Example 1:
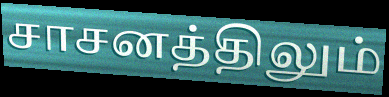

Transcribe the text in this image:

சாசனத்திலும்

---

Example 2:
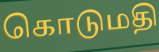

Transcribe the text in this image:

கொடுமதி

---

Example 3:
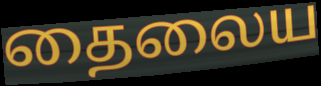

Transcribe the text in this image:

தைலைய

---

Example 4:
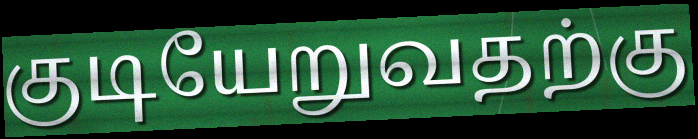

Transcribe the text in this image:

குடியேறுவதற்கு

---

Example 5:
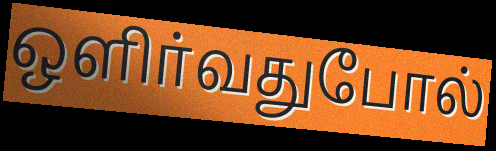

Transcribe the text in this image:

ஒளிர்வதுபோல்